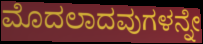
ಮೊದಲಾದವುಗಳನ್ನೇ